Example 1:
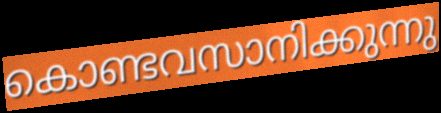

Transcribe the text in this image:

കൊണ്ടവസാനിക്കുന്നു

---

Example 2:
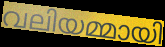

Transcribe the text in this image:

വലിയമ്മായി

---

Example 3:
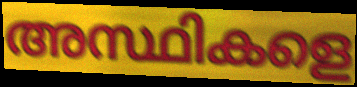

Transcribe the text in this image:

അസ്ഥികളെ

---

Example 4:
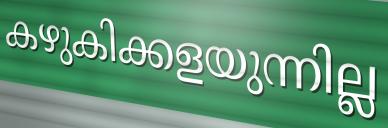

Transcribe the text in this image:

കഴുകിക്കളയുന്നില്ല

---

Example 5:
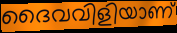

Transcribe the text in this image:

ദൈവവിളിയാണ്